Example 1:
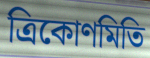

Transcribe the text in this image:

ত্ৰিকোণমিতি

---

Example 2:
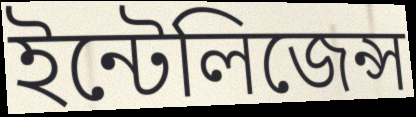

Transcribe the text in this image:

ইন্টেলিজেন্স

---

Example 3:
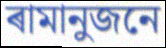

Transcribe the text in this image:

ৰামানুজনে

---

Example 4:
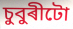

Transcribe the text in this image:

চুবুৰীটো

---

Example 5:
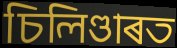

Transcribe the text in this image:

চিলিণ্ডাৰত